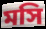
মসি